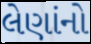
લેણાંનો